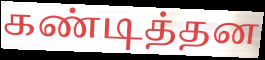
கண்டித்தன